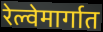
रेल्वेमार्गात